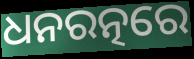
ଧନରତ୍ନରେ